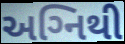
અગ્‍નિથી